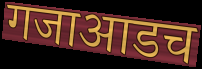
गजाआडच